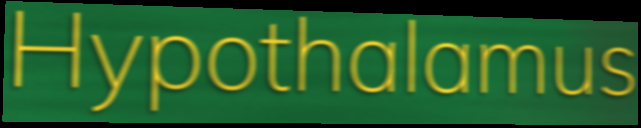
Hypothalamus